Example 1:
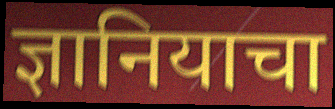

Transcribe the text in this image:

ज्ञानियाचा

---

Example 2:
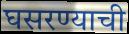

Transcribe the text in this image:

घसरण्याची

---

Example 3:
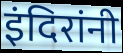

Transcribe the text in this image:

इंदिरांनी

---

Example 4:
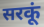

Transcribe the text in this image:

सरकूं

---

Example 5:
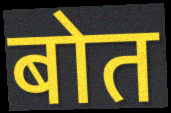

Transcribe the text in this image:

बोत